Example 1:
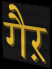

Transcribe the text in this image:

गैऱ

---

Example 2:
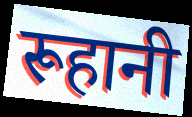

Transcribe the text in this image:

रूहानी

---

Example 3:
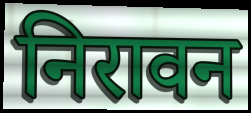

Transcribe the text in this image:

निरावन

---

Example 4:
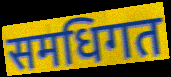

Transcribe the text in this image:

समधिगत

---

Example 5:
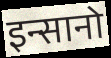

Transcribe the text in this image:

इन्सानो